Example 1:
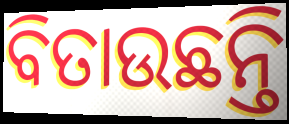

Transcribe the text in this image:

ବିତାଉଛନ୍ତି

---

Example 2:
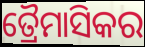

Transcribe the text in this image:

ତ୍ରୈମାସିକର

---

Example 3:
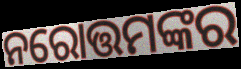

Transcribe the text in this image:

ନରୋତ୍ତମଙ୍କର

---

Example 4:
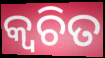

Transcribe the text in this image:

କ୍ୱଚିତ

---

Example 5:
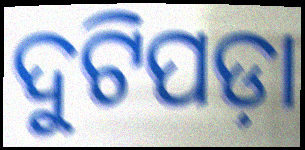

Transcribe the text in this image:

ଦୁଟିପଡ଼ା